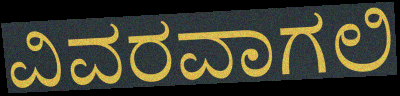
ವಿವರವಾಗಲಿ